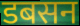
डबसन